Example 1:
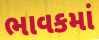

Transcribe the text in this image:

ભાવકમાં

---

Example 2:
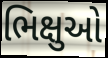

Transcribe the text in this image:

ભિક્ષુઓ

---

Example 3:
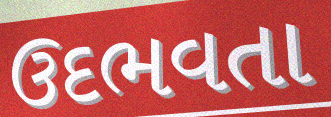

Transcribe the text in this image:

ઉદભવતા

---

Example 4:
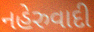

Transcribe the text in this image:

નહેરુવાદી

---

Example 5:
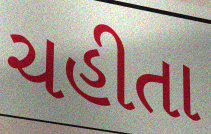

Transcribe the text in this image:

ચહીતા